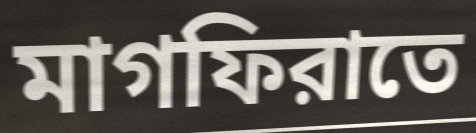
মাগফিরাতে